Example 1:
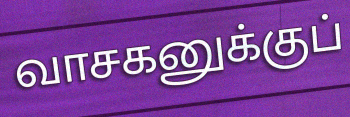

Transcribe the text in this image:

வாசகனுக்குப்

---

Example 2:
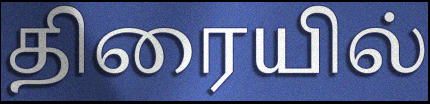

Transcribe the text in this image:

திரையில்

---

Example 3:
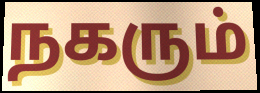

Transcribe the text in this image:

நகரும்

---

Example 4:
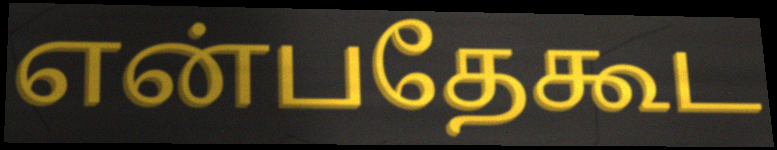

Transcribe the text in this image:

என்பதேகூட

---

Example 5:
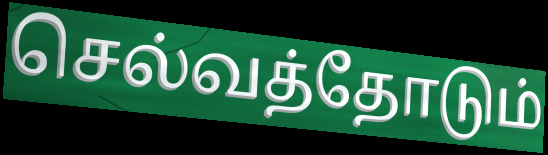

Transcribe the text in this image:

செல்வத்தோடும்